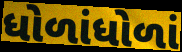
ધોળાંધોળાં